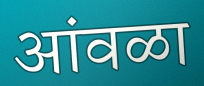
आंवळा